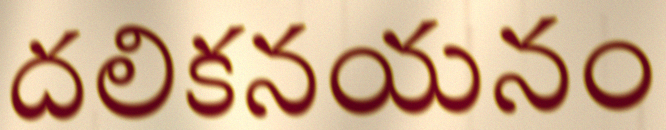
దలికనయనం